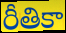
రీతికా